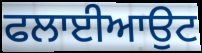
ਫਲਾਈਆਉਟ